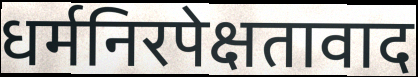
धर्मनिरपेक्षतावाद